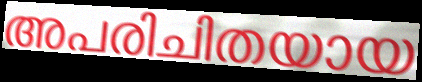
അപരിചിതയായ